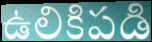
ఉలికిపడి